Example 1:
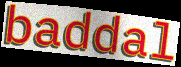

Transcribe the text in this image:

baddal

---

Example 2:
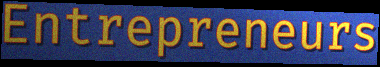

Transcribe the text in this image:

Entrepreneurs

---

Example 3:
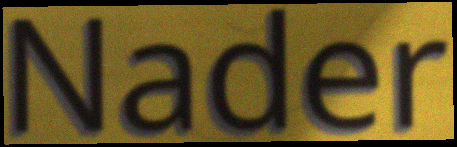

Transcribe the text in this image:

Nader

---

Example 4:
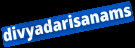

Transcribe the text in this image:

divyadarisanams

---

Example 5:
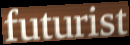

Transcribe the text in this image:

futurist